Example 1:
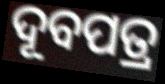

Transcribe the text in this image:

ଦୂବପତ୍ର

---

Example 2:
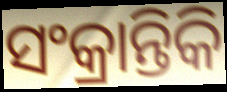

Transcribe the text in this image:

ସଂକ୍ରାନ୍ତିକି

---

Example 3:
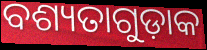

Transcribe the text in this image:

ବଶ୍ୟତାଗୁଡ଼ାକ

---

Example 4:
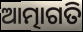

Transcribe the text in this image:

ଆତ୍ମାଗତି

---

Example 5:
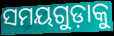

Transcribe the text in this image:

ସମୟଗୁଡ଼ାକୁ